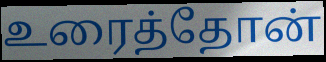
உரைத்தோன்